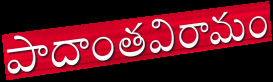
పాదాంతవిరామం